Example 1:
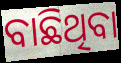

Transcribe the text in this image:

ବାଛିଥିବା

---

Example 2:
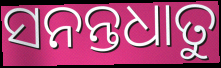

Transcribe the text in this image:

ସନନ୍ତଧାତୁ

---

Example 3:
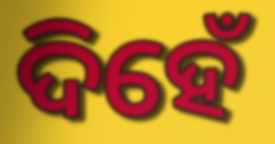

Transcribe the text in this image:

ଦିହେଁ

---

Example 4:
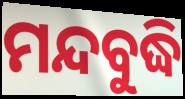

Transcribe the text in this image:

ମନ୍ଦବୁଦ୍ଧି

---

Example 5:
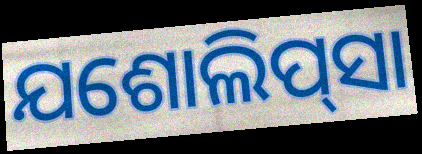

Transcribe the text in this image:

ଯଶୋଲିପ୍‌ସା